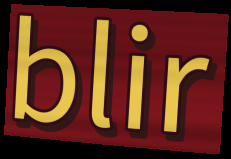
blir